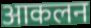
आकलन